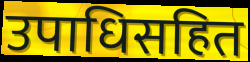
उपाधिसहित